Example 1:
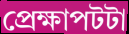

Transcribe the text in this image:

প্রেক্ষাপটটা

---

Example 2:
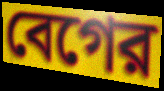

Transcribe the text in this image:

বেগের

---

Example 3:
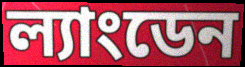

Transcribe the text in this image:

ল্যাংডেন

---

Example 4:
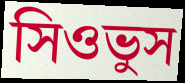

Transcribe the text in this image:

সিওভুস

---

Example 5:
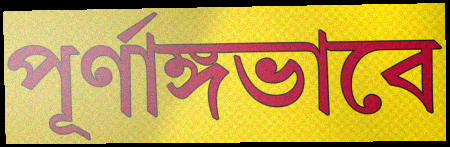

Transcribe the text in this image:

পূর্ণাঙ্গভাবে